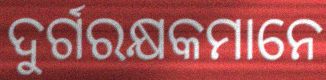
ଦୁର୍ଗରକ୍ଷକମାନେ